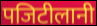
पजिटीलानी